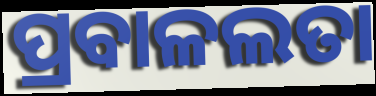
ପ୍ରବାଳଲତା